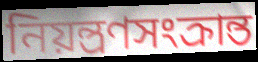
নিয়ন্ত্রণসংক্রান্ত